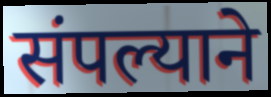
संपल्याने